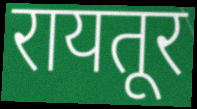
रायतूर